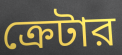
ক্রেটার